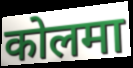
कोलमा